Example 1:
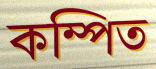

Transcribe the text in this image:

কম্পিত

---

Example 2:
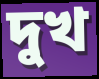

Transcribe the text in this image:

দুখ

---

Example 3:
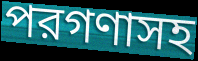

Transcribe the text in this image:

পরগণাসহ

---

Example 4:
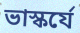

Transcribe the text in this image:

ভাস্কর্যে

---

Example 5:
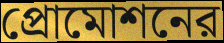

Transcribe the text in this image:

প্রোমোশনের